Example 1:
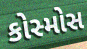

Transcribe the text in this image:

કોસ્મોસ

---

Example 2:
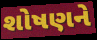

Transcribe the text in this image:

શોષણને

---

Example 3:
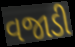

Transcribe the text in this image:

વજાડી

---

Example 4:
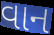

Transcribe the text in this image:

વાન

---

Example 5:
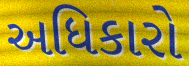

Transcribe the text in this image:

અધિકારો